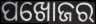
ପଖୋଜର